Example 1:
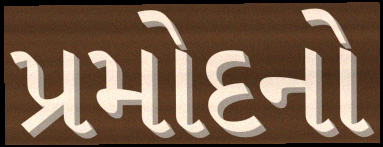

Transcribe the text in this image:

પ્રમોદનો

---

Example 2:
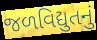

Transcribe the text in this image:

જળવિદ્યુતનું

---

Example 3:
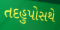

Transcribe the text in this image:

તદહુપોસથે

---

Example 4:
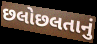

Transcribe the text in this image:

છલોછલતાનું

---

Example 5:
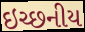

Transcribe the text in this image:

ઇચ્છનીય